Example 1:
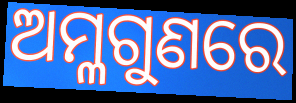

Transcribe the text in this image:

ଅମ୍ଳଗୁଣରେ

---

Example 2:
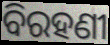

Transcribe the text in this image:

ବିରହଣୀ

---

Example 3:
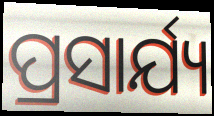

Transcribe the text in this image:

ପ୍ରସାର୍ଯ୍ୟ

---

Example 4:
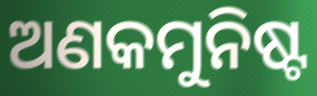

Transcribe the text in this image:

ଅଣକମୁନିଷ୍ଟ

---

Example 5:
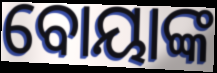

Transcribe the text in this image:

ବୋୟାଙ୍କ